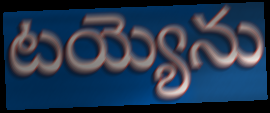
టయ్యెను